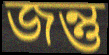
জন্তু